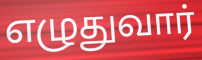
எழுதுவார்